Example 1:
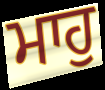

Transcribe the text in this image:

ਮਾਹੁ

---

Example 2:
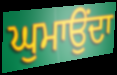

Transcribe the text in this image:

ਘੁਮਾਉਂਦਾ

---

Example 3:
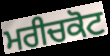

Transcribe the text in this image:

ਮਰੀਚਕੋਟ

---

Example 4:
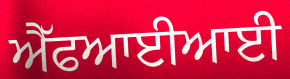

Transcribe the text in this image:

ਐੱਫਆਈਆਈ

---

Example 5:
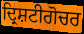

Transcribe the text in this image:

ਦ੍ਰਿਸ਼ਟੀਗੋਚਰ